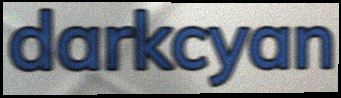
darkcyan